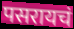
पसरायचं